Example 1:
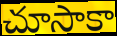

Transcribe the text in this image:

చూసాకా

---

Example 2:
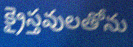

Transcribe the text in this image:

క్రైస్తవులతోను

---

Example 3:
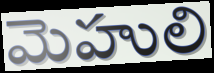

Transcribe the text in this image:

మెహులి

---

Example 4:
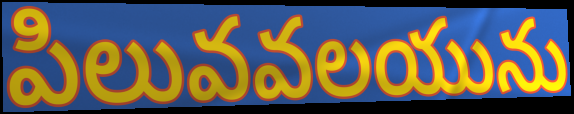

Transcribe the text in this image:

పిలువవలయును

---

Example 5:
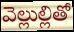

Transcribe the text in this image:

వెల్లుల్లితో